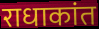
राधाकांत